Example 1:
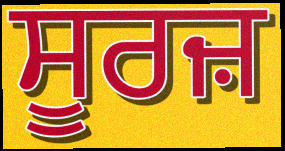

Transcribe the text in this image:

ਸੂਰਜ਼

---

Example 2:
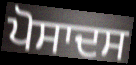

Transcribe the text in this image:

ਪੋਸਾਦਸ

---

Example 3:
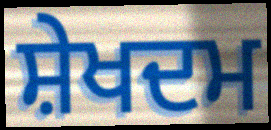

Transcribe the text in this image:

ਸ਼ੇਖਦਮ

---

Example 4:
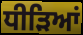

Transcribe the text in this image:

ਧੀੜਿਆਂ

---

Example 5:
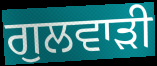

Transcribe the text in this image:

ਗੁਲਵਾੜੀ